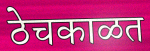
ठेचकाळत